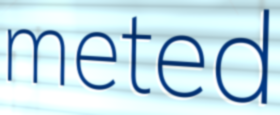
meted